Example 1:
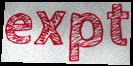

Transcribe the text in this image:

expt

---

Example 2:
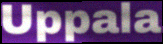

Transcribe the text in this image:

Uppala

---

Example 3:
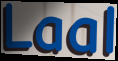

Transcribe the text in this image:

Laal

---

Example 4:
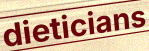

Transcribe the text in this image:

dieticians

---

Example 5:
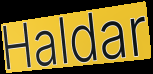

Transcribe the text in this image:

Haldar